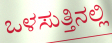
ಒಳಸುತ್ತಿನಲ್ಲಿ